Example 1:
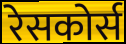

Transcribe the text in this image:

रेसकोर्स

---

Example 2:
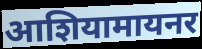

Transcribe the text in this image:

आशियामायनर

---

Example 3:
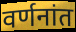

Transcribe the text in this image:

वर्णनांत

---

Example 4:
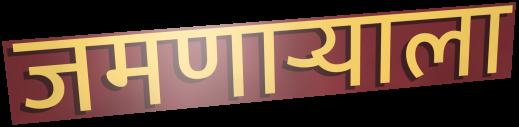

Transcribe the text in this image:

जमणाऱ्याला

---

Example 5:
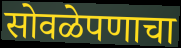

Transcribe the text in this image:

सोवळेपणाचा